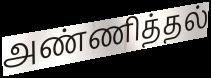
அண்ணித்தல்